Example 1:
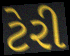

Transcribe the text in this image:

ટેરી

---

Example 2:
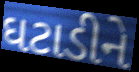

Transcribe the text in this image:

ઘટાડીને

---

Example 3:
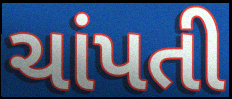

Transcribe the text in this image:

ચાંપતી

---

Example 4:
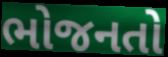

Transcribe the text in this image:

ભોજનતો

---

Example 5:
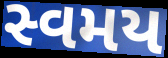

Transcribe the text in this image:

સ્વમય